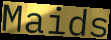
Maids